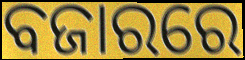
ବଜାରରେ